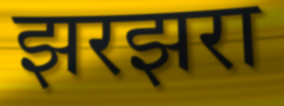
झरझरा